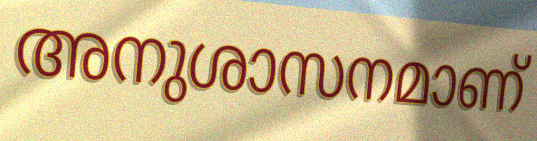
അനുശാസനമാണ്